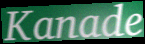
Kanade